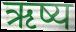
ऋष्य